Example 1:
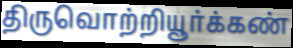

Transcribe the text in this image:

திருவொற்றியூர்க்கண்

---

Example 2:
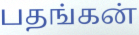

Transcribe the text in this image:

பதங்கன்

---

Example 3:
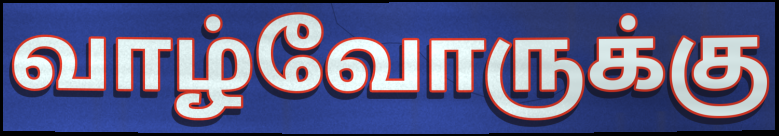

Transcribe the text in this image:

வாழ்வோருக்கு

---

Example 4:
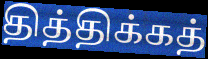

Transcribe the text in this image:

தித்திக்கத்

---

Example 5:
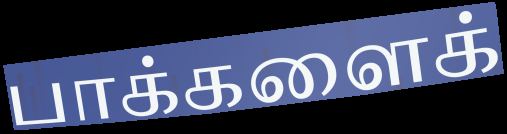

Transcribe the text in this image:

பாக்களைக்